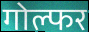
गोल्फर